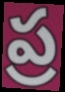
ప్ర